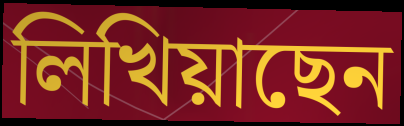
লিখিয়াছেন